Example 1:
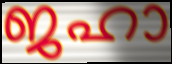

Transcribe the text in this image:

ജഹാ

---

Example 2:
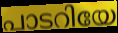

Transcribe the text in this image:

പാടറിയേ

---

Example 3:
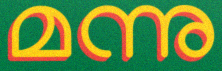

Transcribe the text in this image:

മന്നു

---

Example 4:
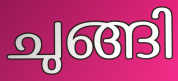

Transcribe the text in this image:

ചുങ്ങി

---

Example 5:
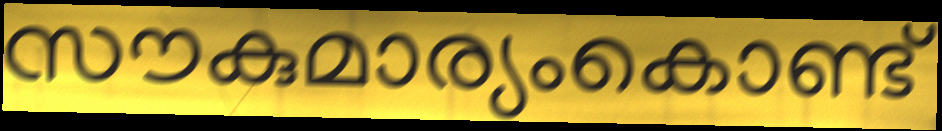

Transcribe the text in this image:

സൗകുമാര്യംകൊണ്ട്